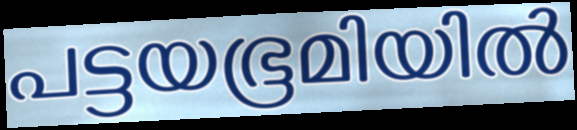
പട്ടയഭൂമിയിൽ